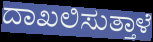
ದಾಖಲಿಸುತ್ತಾಳೆ